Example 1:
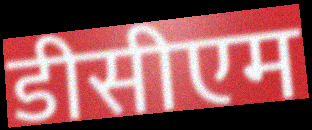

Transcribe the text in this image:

डीसीएम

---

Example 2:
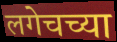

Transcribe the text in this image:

लगेचच्या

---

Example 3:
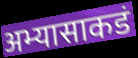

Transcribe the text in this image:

अभ्यासाकडं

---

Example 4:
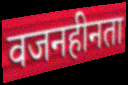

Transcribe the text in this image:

वजनहीनता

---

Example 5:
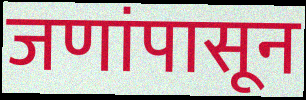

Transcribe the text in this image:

जणांपासून